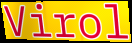
Virol